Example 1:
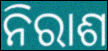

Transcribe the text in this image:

ନିରାଶ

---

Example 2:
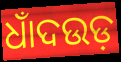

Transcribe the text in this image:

ଧାଁଦଉଡ଼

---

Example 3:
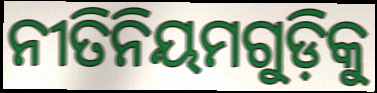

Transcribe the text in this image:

ନୀତିନିୟମଗୁଡ଼ିକୁ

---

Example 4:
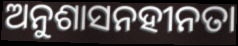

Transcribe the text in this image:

ଅନୁଶାସନହୀନତା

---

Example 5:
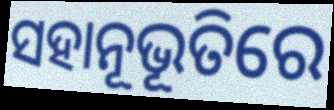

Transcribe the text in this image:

ସହାନୂଭୂତିରେ